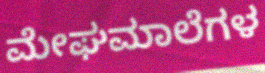
ಮೇಘಮಾಲೆಗಳ